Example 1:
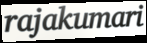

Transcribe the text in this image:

rajakumari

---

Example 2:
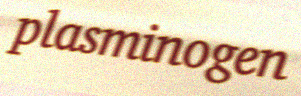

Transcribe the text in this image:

plasminogen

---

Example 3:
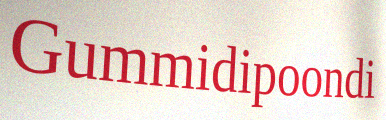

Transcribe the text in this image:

Gummidipoondi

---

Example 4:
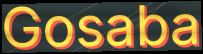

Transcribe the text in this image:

Gosaba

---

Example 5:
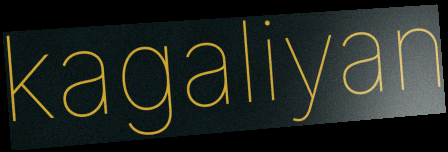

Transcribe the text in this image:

kagaliyan